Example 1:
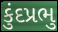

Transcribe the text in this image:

કુંદપ્રભુ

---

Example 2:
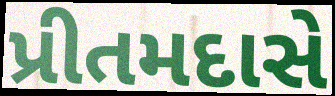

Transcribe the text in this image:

પ્રીતમદાસે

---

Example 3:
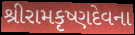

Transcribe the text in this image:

શ્રીરામકૃષ્ણદેવના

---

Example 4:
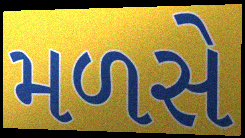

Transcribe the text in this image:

મળસે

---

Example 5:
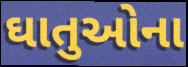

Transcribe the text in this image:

ઘાતુઓના